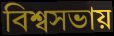
বিশ্বসভায়